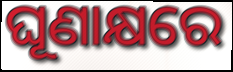
ଘୂଣାକ୍ଷରେ